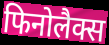
फिनोलैक्स